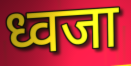
ध्वजा